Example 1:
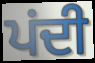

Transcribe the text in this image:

ਪਂਦੀ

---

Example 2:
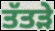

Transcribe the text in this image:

ਤੱਤੜੇ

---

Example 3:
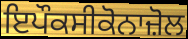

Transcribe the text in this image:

ਇਪੌਕਸੀਕੋਨਾਜ਼ੋਲ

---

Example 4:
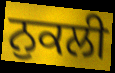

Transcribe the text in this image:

ਨੁਕਲੀ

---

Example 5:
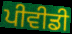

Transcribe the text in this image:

ਪੀਵੀਡੀ